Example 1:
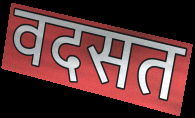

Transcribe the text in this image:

वदसत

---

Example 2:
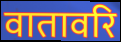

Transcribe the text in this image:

वातावरि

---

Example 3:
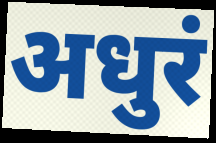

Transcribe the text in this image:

अधुरं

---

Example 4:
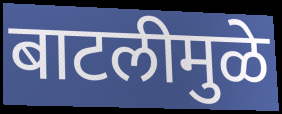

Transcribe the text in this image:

बाटलीमुळे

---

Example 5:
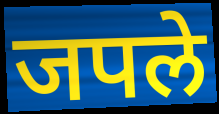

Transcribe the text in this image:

जपले